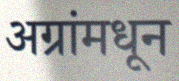
अग्रांमधून